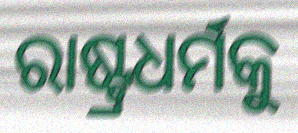
ରାଷ୍ଟ୍ରଧର୍ମକୁ